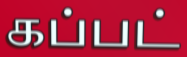
கப்பட்